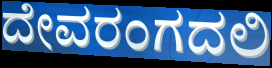
ದೇವರಂಗದಲಿ